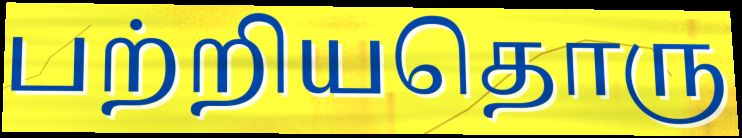
பற்றியதொரு